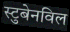
स्टुबेनविल